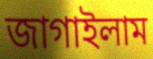
জাগাইলাম